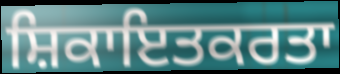
ਸ਼ਿਕਾਇਤਕਰਤਾ